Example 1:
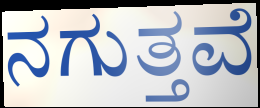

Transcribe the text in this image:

ನಗುತ್ತವೆ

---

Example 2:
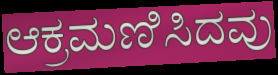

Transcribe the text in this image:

ಆಕ್ರಮಣಿಸಿದವು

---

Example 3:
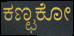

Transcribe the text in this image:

ಕಣ್ಟಕೋ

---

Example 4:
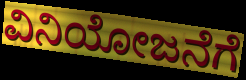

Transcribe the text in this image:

ವಿನಿಯೋಜನೆಗೆ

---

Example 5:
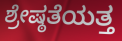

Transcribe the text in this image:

ಶ್ರೇಷ್ಠತೆಯತ್ತ